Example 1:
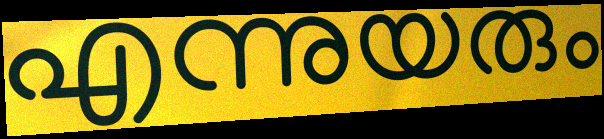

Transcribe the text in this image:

എന്നുയരും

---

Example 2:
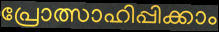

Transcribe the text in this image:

പ്രോത്സാഹിപ്പിക്കാം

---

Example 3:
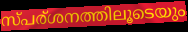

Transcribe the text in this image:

സ്പര്ശനത്തിലൂടെയും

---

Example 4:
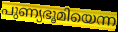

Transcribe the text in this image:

പുണ്യഭൂമിയെന്ന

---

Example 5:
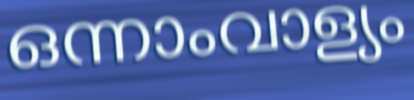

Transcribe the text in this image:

ഒന്നാംവാള്യം